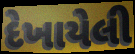
દેખાયેલી